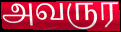
அவருர